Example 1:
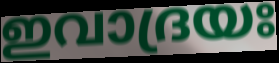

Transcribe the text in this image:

ഇവാദ്രയഃ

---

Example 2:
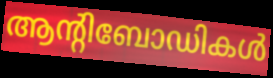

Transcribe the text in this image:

ആന്റിബോഡികൾ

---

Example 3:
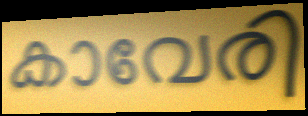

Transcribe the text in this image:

കാവേരി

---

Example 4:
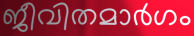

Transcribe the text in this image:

ജീവിതമാർഗം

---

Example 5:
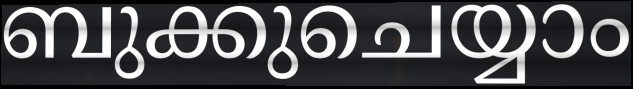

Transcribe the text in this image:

ബുക്കുചെയ്യാം